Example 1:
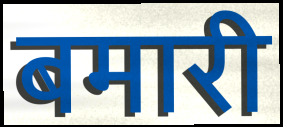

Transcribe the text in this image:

बमारी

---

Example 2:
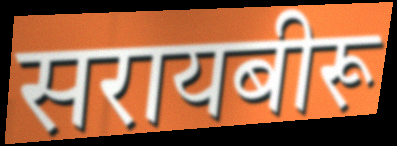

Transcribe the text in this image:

सरायबीरू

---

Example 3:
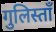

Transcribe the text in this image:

गुलिस्ताँ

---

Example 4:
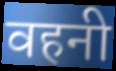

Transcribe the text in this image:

वहनी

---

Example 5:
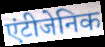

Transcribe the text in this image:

एंटीजेनिक